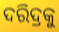
ଦରିଦ୍ରକୁ